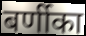
बर्णीका